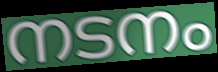
നടനം